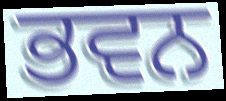
ਭਵਨ